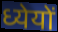
ध्येयों